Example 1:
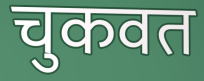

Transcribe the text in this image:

चुकवत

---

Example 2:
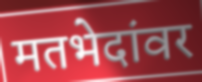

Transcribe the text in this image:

मतभेदांवर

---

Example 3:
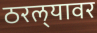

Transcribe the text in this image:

ठरल्यावर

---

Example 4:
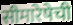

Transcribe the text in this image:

सीमारेषेची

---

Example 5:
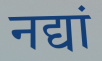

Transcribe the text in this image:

नद्यां